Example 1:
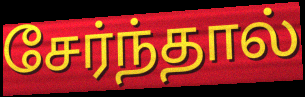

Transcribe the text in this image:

சேர்ந்தால்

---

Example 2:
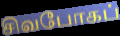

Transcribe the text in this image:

சிவபோகப்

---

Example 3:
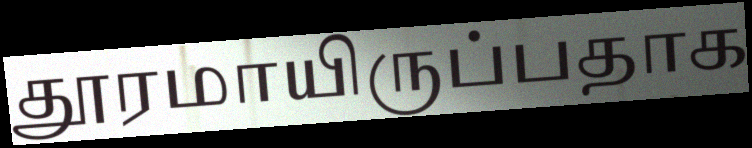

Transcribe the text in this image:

தூரமாயிருப்பதாக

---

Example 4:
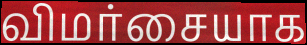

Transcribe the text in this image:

விமர்சையாக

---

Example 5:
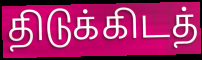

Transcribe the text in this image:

திடுக்கிடத்